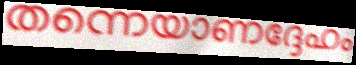
തന്നെയാണദ്ദേഹം